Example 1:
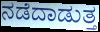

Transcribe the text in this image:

ನಡೆದಾಡುತ್ತ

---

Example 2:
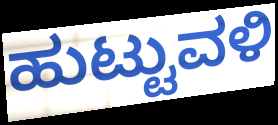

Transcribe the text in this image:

ಹುಟ್ಟುವಳಿ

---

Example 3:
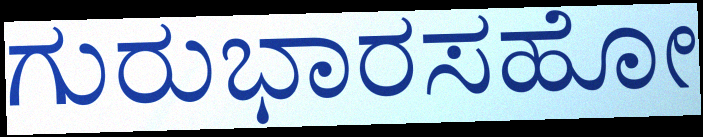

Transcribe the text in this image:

ಗುರುಭಾರಸಹೋ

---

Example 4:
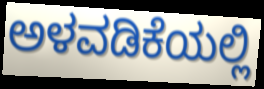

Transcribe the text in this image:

ಅಳವಡಿಕೆಯಲ್ಲಿ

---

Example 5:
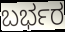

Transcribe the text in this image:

ಬರ್ಭರ